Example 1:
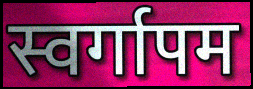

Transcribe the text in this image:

स्वर्गापम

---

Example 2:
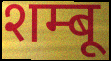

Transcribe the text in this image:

शम्बू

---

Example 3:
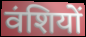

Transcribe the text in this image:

वंशियों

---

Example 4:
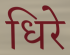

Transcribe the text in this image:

धिरे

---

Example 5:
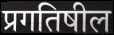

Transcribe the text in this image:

प्रगतिषील